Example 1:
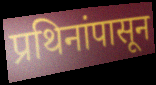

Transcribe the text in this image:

प्रथिनांपासून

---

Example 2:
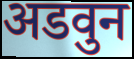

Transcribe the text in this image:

अडवुन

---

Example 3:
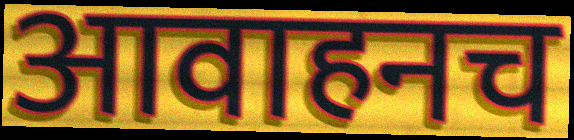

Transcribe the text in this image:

आवाहनच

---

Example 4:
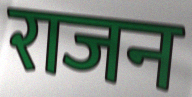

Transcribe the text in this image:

राजन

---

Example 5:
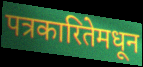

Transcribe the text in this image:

पत्रकारितेमधून